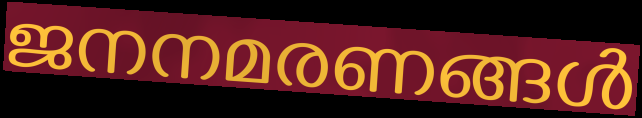
ജനനമരണങ്ങൾ